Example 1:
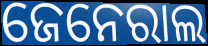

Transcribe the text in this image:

ଜେନେରାଲ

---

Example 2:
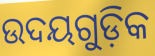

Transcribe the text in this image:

ଉଦୟଗୁଡ଼ିକ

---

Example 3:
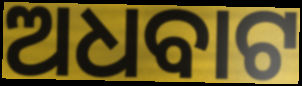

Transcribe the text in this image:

ଅଧବାଟ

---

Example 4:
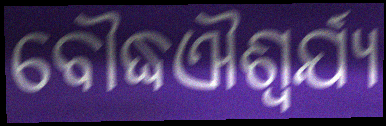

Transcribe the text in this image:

ବୌଦ୍ଧଐଶ୍ୱର୍ଯ୍ୟ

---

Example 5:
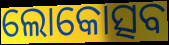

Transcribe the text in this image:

ଲୋକୋତ୍ସବ